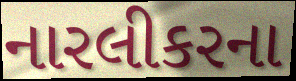
નારલીકરના